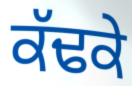
ਕੱਢਕੇ